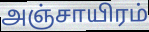
அஞ்சாயிரம்